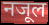
नजूल